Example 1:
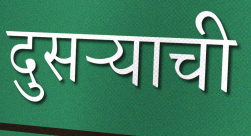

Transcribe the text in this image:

दुसऱ्याची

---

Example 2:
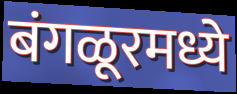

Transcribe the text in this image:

बंगळूरमध्ये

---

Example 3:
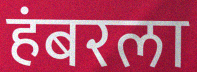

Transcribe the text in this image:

हंबरला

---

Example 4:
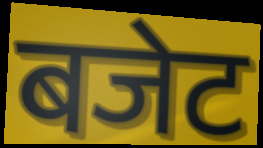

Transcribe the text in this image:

बजेट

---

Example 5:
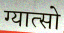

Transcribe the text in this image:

ग्यात्सो